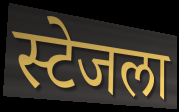
स्टेजला